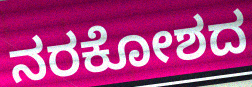
ನರಕೋಶದ